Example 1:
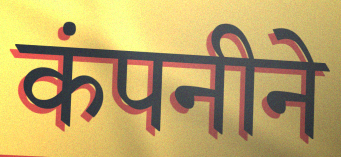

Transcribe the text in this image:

कंपनीने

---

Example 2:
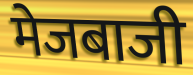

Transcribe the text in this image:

मेजबाजी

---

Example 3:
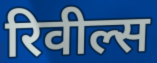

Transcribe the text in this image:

रिवील्स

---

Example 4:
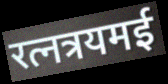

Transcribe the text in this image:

रत्नत्रयमई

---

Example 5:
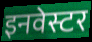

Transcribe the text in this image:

इनवेस्टर